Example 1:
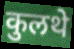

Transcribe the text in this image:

कुलथे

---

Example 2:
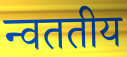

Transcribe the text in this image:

न्वततीय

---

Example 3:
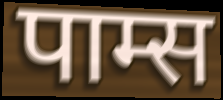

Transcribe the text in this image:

पाम्स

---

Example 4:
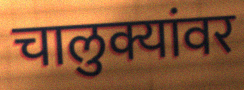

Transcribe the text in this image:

चालुक्यांवर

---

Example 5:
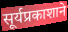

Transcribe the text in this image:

सूर्यप्रकाशाने